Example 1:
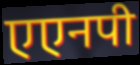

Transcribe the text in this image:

एएनपी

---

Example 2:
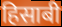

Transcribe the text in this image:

हिसाबी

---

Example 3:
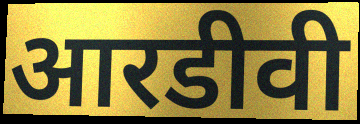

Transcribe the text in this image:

आरडीवी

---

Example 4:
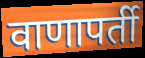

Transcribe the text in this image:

वाणापर्ती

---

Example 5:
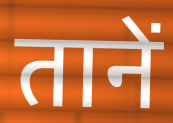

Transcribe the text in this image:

तानें